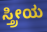
ಸ್ತ್ರೀಯ